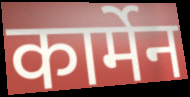
कार्मेन